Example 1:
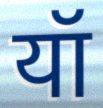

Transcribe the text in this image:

यॉ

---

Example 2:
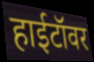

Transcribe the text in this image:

हाईटॉवर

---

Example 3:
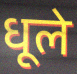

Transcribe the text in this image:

धूले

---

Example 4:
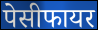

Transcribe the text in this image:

पेसीफायर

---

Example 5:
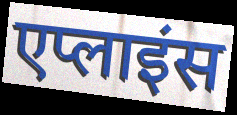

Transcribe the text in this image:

एप्लाइंस